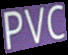
PVC